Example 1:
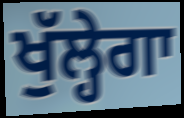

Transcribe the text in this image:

ਖੁੱਲ੍ਹੇਗਾ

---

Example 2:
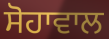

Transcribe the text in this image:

ਸੋਹਾਵਾਲ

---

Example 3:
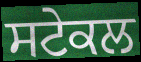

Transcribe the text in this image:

ਸਟੇਕਲ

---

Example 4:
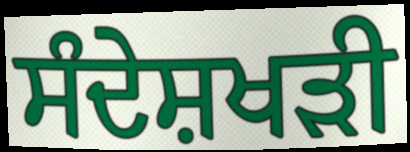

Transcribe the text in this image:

ਸੰਦੇਸ਼ਖੜੀ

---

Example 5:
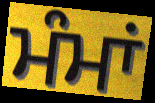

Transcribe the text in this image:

ਮੰਮਾਂ